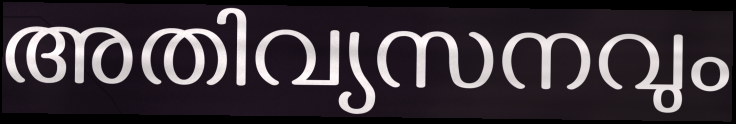
അതിവ്യസനവും